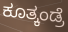
ಕೂತ್ಕಂಡ್ರೆ